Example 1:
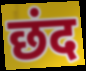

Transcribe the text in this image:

छंद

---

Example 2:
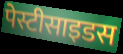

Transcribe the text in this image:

पेस्टीसाइडस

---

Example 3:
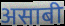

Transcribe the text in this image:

असाबी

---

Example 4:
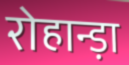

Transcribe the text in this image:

रोहान्ड़ा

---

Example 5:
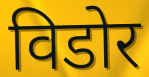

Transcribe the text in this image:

विडोर